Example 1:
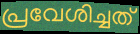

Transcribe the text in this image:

പ്രവേശിച്ചത്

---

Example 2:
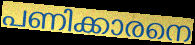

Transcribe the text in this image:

പണിക്കാരനെ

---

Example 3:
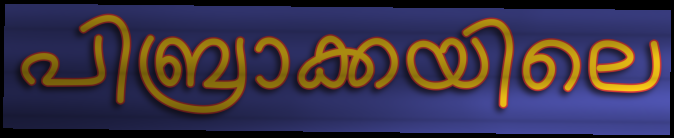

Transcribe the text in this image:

പിബ്രാക്കയിലെ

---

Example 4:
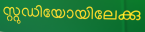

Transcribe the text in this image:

സ്റ്റുഡിയോയിലേക്കു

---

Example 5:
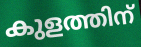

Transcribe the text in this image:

കുളത്തിന്